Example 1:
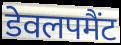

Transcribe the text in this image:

डेवलपमैंट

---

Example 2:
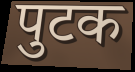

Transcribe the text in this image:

पुटक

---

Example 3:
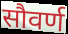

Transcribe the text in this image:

सौवर्ण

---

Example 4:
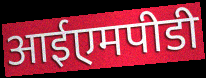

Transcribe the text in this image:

आईएमपीडी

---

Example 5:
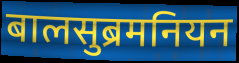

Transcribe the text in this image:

बालसुब्रमनियन